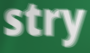
stry